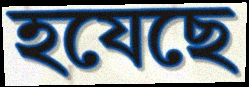
হযেছে